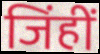
जिंहीं